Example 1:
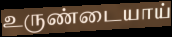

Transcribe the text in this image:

உருண்டையாய்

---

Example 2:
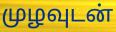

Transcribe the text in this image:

முழவுடன்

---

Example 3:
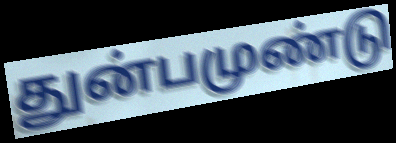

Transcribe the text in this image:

துன்பமுண்டு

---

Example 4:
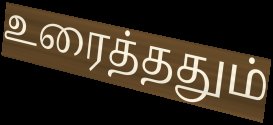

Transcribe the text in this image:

உரைத்ததும்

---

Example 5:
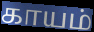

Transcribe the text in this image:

காயம்